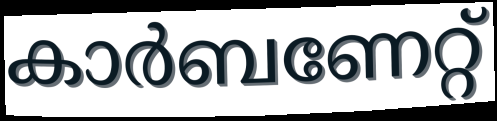
കാർബണേറ്റ്